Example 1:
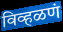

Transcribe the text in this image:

विव्हळणं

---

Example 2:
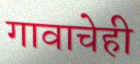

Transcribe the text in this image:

गावाचेही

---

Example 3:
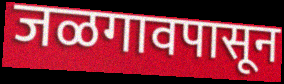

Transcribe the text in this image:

जळगावपासून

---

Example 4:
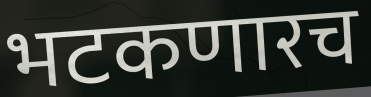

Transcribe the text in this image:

भटकणारच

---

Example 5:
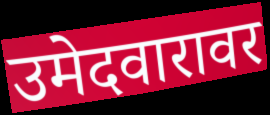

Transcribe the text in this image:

उमेदवारावर